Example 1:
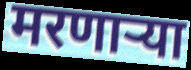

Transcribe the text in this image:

मरणार्‍या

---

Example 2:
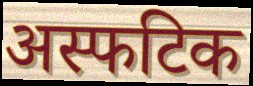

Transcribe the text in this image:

अस्फटिक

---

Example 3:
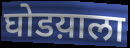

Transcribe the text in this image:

घोडय़ाला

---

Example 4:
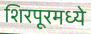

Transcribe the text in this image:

शिरपूरमध्ये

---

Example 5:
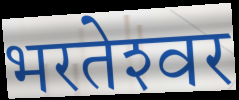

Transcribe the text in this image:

भरतेश्वर